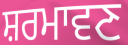
ਸ਼ਰਮਾਵਣ